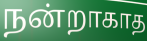
நன்றாகாத